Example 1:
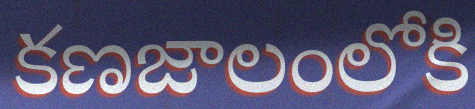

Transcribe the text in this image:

కణజాలంలోకి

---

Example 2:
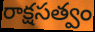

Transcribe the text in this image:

రాక్షసత్వం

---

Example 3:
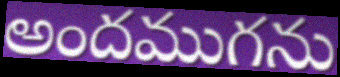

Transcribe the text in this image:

అందముగను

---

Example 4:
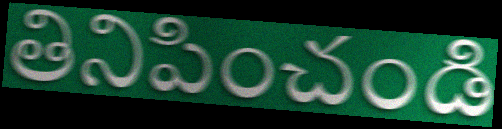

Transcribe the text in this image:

తినిపించండి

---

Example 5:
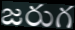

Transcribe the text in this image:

జరుగ